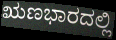
ಋಣಭಾರದಲ್ಲಿ